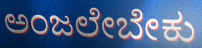
ಅಂಜಲೇಬೇಕು